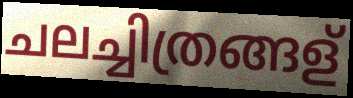
ചലച്ചിത്രങ്ങള്